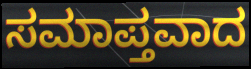
ಸಮಾಪ್ತವಾದ